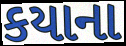
કયાના